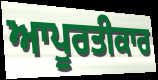
ਆਪੂਰਤੀਕਾਰ